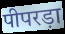
पीपरड़ा